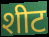
शीट